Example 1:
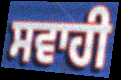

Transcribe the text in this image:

ਸਵਾਹੀ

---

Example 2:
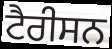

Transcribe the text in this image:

ਟੈਰੀਸਨ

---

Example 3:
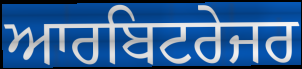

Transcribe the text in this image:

ਆਰਬਿਟਰੇਜਰ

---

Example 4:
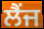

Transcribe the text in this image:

ਲੈਂਜ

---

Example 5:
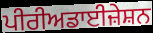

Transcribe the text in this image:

ਪੀਰੀਅਡਾਈਜ਼ੇਸ਼ਨ